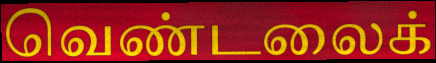
வெண்டலைக்